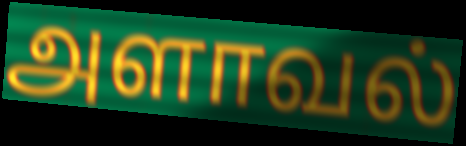
அளாவல்